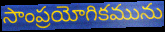
సాంప్రయోగికమును